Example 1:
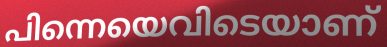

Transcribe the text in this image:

പിന്നെയെവിടെയാണ്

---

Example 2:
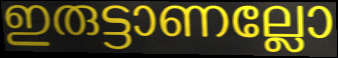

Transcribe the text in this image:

ഇരുട്ടാണല്ലോ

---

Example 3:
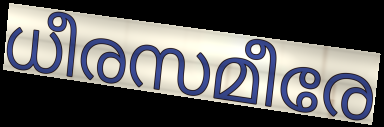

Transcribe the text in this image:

ധീരസമീരേ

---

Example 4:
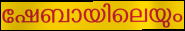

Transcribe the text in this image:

ഷേബായിലെയും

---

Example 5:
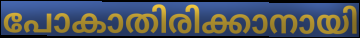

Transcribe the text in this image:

പോകാതിരിക്കാനായി